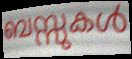
ബസ്സുകൾ